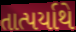
તાત્પર્યાથે